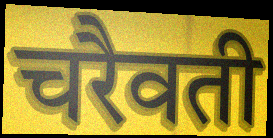
चरैवती